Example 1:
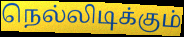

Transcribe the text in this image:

நெல்லிடிக்கும்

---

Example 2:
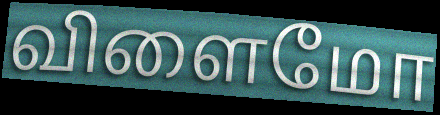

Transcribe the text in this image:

விளைமோ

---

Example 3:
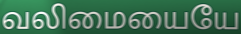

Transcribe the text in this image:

வலிமையையே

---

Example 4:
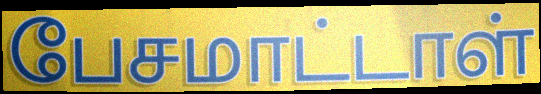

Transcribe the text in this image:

பேசமாட்டாள்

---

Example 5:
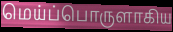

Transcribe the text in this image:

மெய்ப்பொருளாகிய